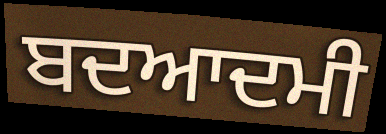
ਬਦਆਦਮੀ